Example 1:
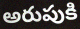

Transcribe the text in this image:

అరుపుకి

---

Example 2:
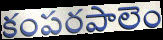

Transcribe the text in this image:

కంపరపాలెం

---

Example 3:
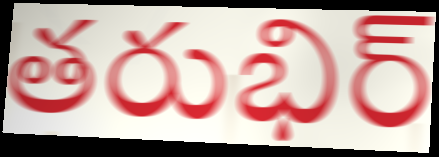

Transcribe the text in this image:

తరుభిర్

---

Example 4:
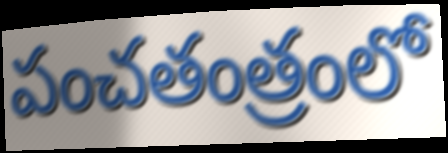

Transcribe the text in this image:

పంచతంత్రంలో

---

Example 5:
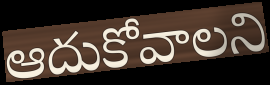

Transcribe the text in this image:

ఆదుకోవాలని